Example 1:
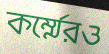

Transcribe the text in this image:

কর্ম্মেরও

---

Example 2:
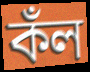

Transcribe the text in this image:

কঁল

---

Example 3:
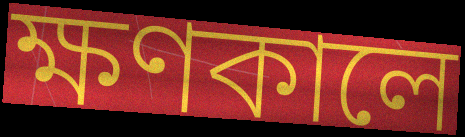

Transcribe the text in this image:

ক্ষণকালে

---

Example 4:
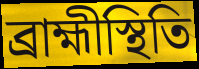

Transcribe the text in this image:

ব্রাহ্মীস্থিতি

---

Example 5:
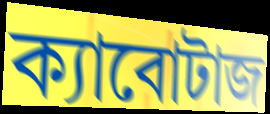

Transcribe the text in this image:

ক্যাবোটাজ